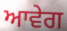
ਆਵੇਗ